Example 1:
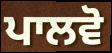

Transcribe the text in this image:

ਪਾਲਵੋ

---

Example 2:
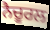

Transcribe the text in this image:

ਨੈਚੂਰਲ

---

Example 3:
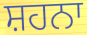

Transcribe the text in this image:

ਸ਼ਹਨਾ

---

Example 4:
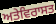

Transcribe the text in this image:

ਅਤੇਵਿਰਾਸਤ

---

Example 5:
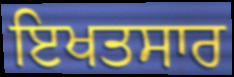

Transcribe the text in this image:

ਇਖਤਸਾਰ